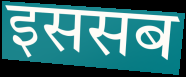
इससब